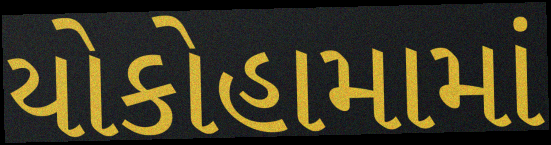
યોકોહામામાં